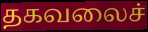
தகவலைச்